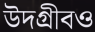
উদগ্রীবও